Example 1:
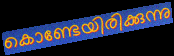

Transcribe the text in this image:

കൊണ്ടേയിരിക്കുന്നു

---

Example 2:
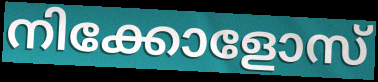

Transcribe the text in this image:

നിക്കോളോസ്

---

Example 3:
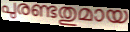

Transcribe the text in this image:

പുരണ്ടതുമായ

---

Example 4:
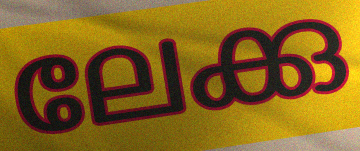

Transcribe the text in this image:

ലേക്കു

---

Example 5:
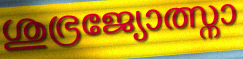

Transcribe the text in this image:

ശുഭ്രജ്യോത്സ്നാ